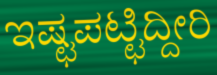
ಇಷ್ಟಪಟ್ಟಿದ್ದೀರಿ